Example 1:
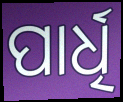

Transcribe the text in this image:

ପାର୍ଧି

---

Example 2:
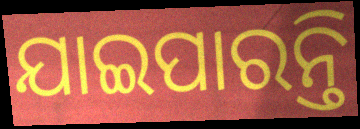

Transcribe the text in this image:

ଯାଇପାରନ୍ତି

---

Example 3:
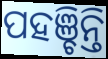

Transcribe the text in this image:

ପହଞ୍ଚିନ୍ତି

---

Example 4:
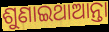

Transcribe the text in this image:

ଶୁଣାଇଥାଆନ୍ତା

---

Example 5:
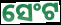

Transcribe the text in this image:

ସେଂଟ